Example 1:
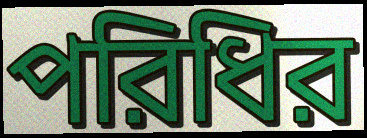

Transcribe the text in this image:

পরিধির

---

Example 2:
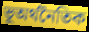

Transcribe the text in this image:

ভূঅর্থনৈতিক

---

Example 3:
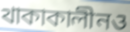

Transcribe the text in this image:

থাকাকালীনও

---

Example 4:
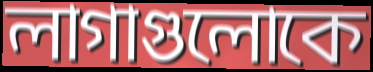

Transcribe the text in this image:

লাগাগুলোকে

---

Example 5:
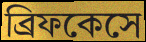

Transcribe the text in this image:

ব্রিফকেসে